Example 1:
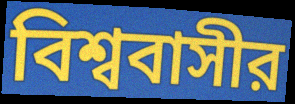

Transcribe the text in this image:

বিশ্ববাসীর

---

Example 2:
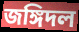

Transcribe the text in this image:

জঙ্গিদল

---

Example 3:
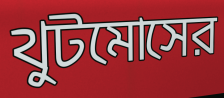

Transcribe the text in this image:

থুটমোসের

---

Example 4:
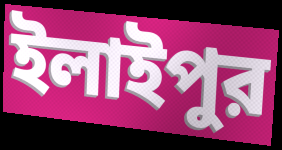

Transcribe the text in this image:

ইলাইপুর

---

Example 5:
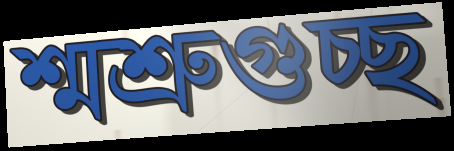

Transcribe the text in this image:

শ্মশ্রুগুচ্ছ